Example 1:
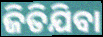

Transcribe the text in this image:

ଜିତିଯିବା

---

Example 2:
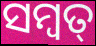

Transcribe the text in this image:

ସମ୍ବତ୍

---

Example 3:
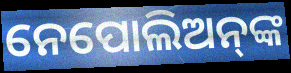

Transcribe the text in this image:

ନେପୋଲିଅନ୍‌ଙ୍କ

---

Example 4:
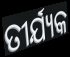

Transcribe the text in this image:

ତୀର୍ଯ୍ୟକ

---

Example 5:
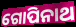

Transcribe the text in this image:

ଗୋପିନାଥ